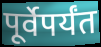
पूर्वेपर्यंत